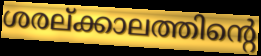
ശരല്ക്കാലത്തിന്റെ